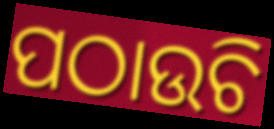
ପଠାଉଚି